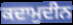
ਕਦਾਮੁਦੀਨ